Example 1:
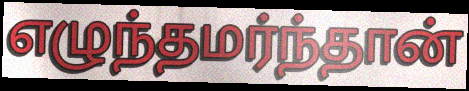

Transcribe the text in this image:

எழுந்தமர்ந்தான்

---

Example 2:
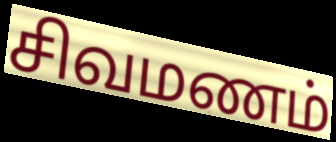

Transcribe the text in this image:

சிவமணம்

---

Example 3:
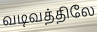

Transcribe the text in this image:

வடிவத்திலே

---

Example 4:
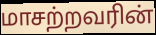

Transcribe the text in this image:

மாசற்றவரின்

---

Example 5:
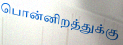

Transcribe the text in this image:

பொன்னிறத்துக்கு